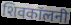
शिवकॉलनी